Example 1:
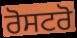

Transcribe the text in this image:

ਰੋਸਟਰੋ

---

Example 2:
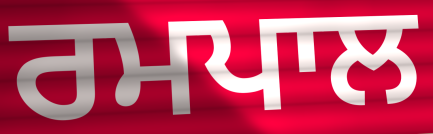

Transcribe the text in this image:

ਰਮਪਾਲ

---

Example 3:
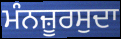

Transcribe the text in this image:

ਮੰਨਜ਼ੂਰਸੁਦਾ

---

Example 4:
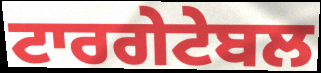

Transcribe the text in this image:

ਟਾਰਗੇਟੇਬਲ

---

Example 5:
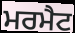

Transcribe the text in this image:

ਮਰਮੈਟ